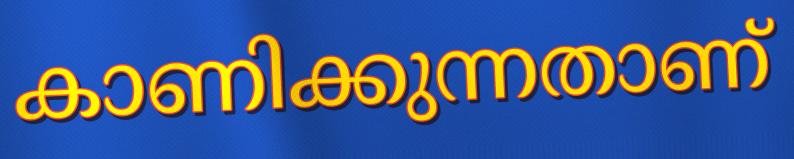
കാണിക്കുന്നതാണ്